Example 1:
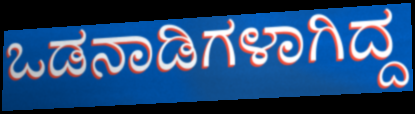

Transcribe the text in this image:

ಒಡನಾಡಿಗಳಾಗಿದ್ದ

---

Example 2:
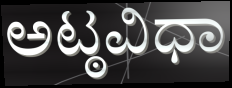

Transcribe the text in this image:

ಅಟ್ಠವಿಧಾ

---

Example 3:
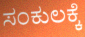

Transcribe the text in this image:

ಸಂಕುಲಕ್ಕೆ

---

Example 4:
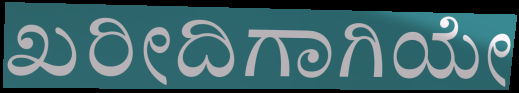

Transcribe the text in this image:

ಖರೀದಿಗಾಗಿಯೇ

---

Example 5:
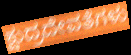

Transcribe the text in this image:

ಕ್ಷುದ್ರದೇವತೆಗಳು